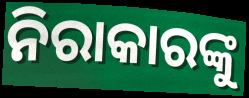
ନିରାକାରଙ୍କୁ